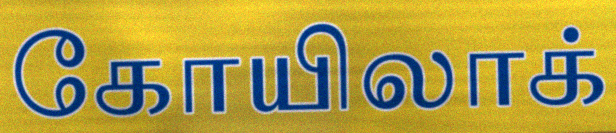
கோயிலாக்